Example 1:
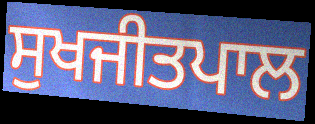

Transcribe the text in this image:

ਸੁਖਜੀਤਪਾਲ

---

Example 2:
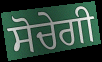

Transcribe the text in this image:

ਸੋਚੇਗੀ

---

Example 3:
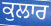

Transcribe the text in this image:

ਕੁਲਾਰ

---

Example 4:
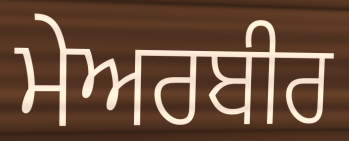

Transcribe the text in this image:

ਮੇਅਰਬੀਰ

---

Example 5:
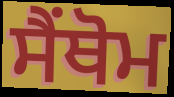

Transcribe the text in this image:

ਸੈਂਥੋਮ